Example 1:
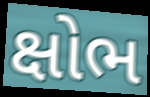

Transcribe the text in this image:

ક્ષોભ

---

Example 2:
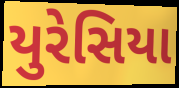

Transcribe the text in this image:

યુરેસિયા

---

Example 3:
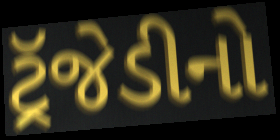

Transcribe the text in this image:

ટ્રૅજેડીનો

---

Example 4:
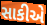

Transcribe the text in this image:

સાકીએ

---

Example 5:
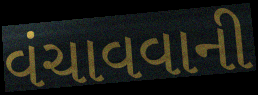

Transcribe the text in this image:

વંચાવવાની